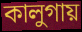
কালুগায়